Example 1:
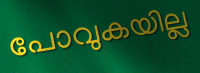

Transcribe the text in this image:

പോവുകയില്ല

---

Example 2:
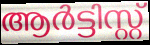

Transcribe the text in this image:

ആർട്ടിസ്റ്റ്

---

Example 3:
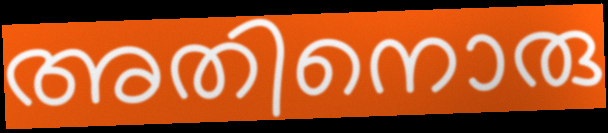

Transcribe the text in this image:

അതിനൊരു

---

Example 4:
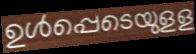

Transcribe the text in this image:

ഉൾപ്പെടെയുളള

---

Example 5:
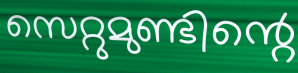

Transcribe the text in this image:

സെറ്റുമുണ്ടിന്റെ